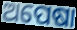
ଅପେଷା